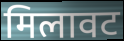
मिलावट